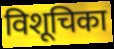
विशूचिका